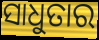
ସାଧୁତାର